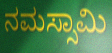
ನಮಸ್ಸಾಮಿ